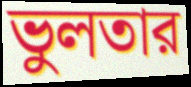
ভুলতার